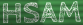
HSAM